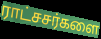
ராட்சசர்களை